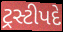
ટ્રસ્ટીપદે